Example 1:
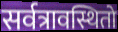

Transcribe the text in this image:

सर्वत्रावस्थितो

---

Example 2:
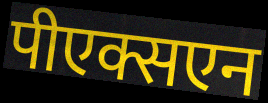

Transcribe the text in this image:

पीएक्सएन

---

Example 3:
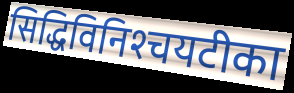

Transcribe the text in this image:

सिद्धिविनिश्चयटीका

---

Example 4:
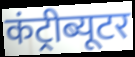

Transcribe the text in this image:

कंट्रीब्यूटर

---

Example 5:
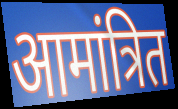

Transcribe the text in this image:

आमांत्रित